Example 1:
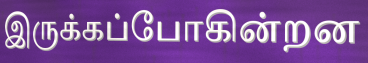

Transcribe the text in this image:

இருக்கப்போகின்றன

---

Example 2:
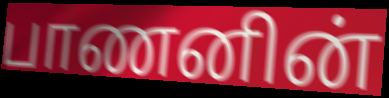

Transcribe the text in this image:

பாணனின்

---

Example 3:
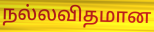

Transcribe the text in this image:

நல்லவிதமான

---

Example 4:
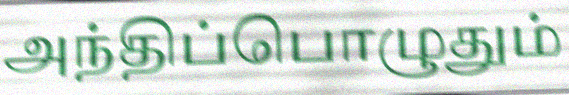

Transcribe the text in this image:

அந்திப்பொழுதும்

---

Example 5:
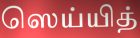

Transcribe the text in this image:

ஸெய்யித்